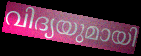
വിദ്യയുമായി